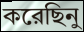
করেছিনু